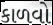
કાળવો